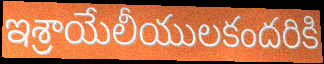
ఇశ్రాయేలీయులకందరికి